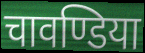
चावण्डिया